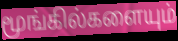
மூங்கில்களையும்